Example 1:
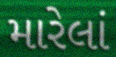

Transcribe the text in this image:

મારેલાં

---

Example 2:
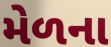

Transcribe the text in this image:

મેળના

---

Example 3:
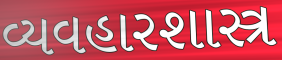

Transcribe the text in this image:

વ્યવહારશાસ્ત્ર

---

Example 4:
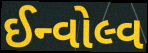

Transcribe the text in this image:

ઈન્વોલ્વ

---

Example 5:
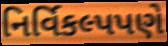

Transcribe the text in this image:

નિર્વિકલ્પપણે